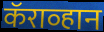
कॅराव्हान